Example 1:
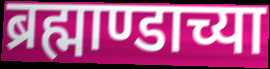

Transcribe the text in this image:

ब्रह्माण्डाच्या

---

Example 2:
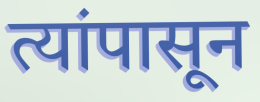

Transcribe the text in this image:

त्यांपासून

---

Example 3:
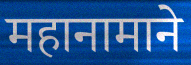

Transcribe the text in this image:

महानामाने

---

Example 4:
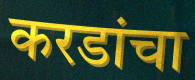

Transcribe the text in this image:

करडांचा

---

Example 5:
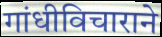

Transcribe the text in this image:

गांधीविचाराने